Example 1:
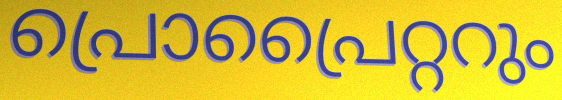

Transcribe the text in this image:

പ്രൊപ്രൈറ്ററും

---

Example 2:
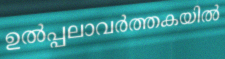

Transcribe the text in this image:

ഉൽപ്പലാവർത്തകയിൽ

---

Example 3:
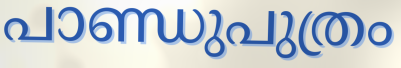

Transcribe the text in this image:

പാണ്ഡുപുത്രം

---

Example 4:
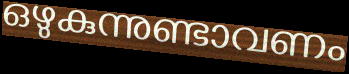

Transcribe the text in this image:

ഒഴുകുന്നുണ്ടാവണം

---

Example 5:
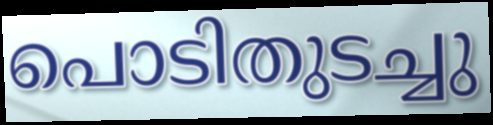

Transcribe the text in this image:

പൊടിതുടച്ചു